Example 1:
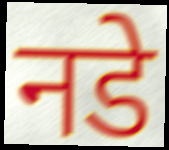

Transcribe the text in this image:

नडे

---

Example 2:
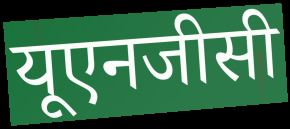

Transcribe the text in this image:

यूएनजीसी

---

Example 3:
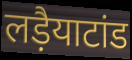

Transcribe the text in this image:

लड़ैयाटांड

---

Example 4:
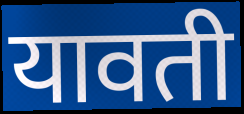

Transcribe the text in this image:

यावती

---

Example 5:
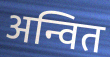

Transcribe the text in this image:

अन्वित